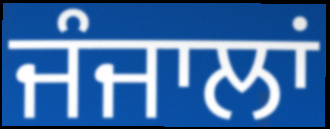
ਜੰਜਾਲਾਂ